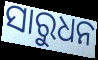
ସାରୁଧନ